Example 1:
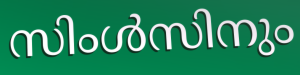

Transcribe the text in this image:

സിംൾസിനും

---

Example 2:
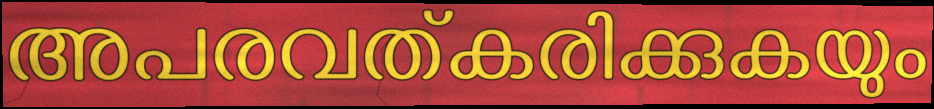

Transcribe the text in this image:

അപരവത്കരിക്കുകയും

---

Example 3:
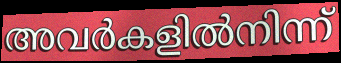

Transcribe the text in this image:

അവർകളിൽനിന്ന്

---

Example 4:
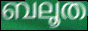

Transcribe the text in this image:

ബലൂത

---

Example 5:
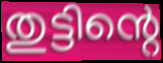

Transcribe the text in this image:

തുട്ടിന്റെ